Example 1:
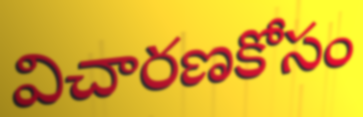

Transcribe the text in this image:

విచారణకోసం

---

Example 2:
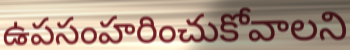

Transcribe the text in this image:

ఉపసంహరించుకోవాలని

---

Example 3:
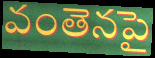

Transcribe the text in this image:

వంతెనపై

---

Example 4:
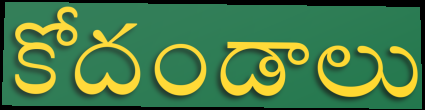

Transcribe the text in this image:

కోదండాలు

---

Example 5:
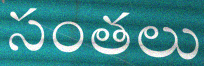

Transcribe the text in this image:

సంతలు